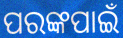
ପରଙ୍କପାଇଁ